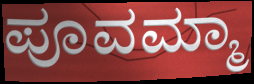
ಪೂವಮ್ಮಾ